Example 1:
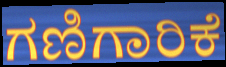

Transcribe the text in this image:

ಗಣಿಗಾರಿಕೆ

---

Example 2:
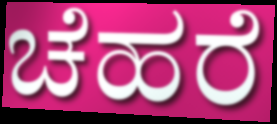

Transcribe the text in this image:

ಚೆಹರೆ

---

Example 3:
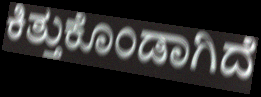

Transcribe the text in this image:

ಕಿತ್ತುಕೊಂಡಾಗಿದೆ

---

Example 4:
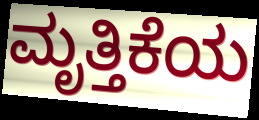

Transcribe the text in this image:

ಮೃತ್ತಿಕೆಯ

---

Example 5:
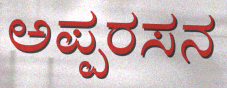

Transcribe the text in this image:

ಅಪ್ಪರಸನ